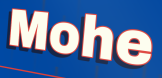
Mohe